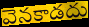
వెనకాడదు